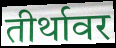
तीर्थावर